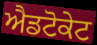
ਐਡਟੋਕੇਟ